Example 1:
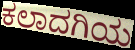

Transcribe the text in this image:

ಕಲಾದಗಿಯ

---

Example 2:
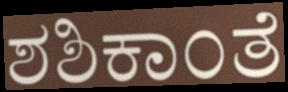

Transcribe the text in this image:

ಶಶಿಕಾಂತೆ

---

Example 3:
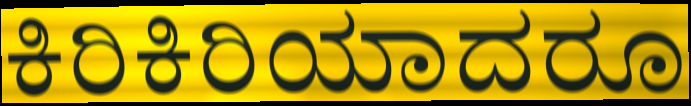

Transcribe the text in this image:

ಕಿರಿಕಿರಿಯಾದರೂ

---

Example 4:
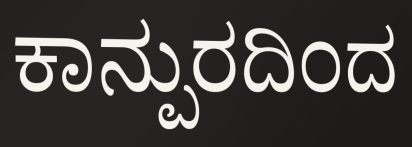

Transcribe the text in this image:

ಕಾನ್ಪುರದಿಂದ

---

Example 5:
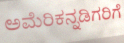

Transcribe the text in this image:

ಅಮೆರಿಕನ್ನಡಿಗರಿಗೆ